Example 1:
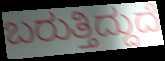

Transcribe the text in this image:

ಬರುತ್ತಿದ್ದುದೆ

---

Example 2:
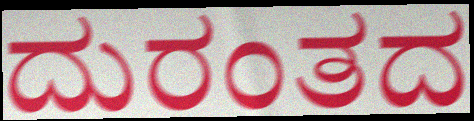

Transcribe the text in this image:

ದುರಂತದ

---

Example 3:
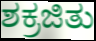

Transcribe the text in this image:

ಶಕ್ರಜಿತು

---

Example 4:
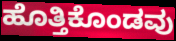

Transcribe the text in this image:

ಹೊತ್ತಿಕೊಂಡವು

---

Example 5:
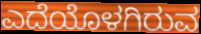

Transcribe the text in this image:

ಎದೆಯೊಳಗಿರುವ